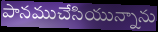
పానముచేసియున్నాను